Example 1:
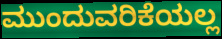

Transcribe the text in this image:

ಮುಂದುವರಿಕೆಯಲ್ಲ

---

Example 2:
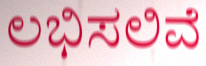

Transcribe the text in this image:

ಲಭಿಸಲಿವೆ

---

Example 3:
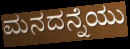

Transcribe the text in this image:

ಮನದನ್ನೆಯು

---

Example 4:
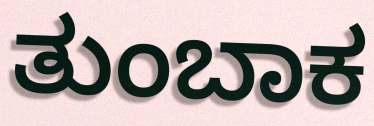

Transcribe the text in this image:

ತುಂಬಾಕ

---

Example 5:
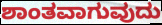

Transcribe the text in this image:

ಶಾಂತವಾಗುವುದು